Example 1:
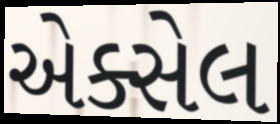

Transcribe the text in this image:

એક્સેલ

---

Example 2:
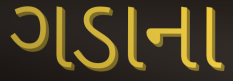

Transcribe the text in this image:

ગડાના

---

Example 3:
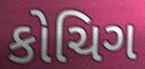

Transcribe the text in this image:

કોચિગ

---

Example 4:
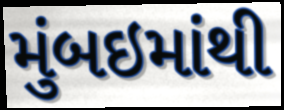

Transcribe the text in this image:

મુંબઇમાંથી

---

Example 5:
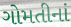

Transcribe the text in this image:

ગોમતીનાં